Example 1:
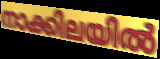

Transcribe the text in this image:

നാക്കിലയിൽ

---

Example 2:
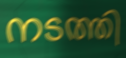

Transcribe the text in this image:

നടത്തി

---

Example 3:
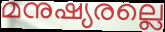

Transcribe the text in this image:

മനുഷ്യരല്ലെ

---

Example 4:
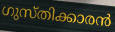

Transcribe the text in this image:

ഗുസ്തിക്കാരൻ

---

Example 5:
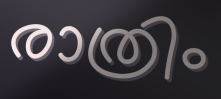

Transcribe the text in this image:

രാത്രിം